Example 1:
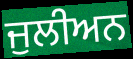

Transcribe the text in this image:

ਜੁਲੀਅਨ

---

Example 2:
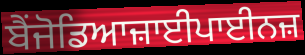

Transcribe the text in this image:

ਬੈਂਜੋਡਿਆਜ਼ਾਈਪਾਈਨਜ਼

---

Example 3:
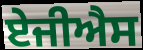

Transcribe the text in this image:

ਏਜੀਐਸ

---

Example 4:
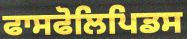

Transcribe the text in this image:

ਫਾਸਫੋਲਿਪਿਡਸ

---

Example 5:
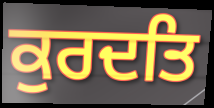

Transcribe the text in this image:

ਕੁਰਦਤਿ